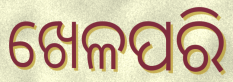
ଖେଳପରି